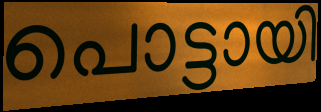
പൊട്ടായി